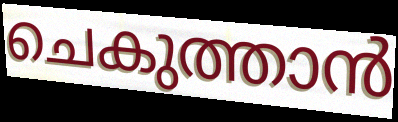
ചെകുത്താൻ